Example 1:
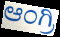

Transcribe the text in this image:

ಆಂಗ್ರಿ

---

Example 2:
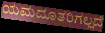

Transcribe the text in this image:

ಯಮದೂತರಿಗಲ್ಲದೆ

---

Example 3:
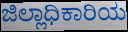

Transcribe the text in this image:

ಜಿಲ್ಲಾಧಿಕಾರಿಯ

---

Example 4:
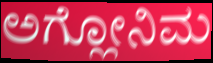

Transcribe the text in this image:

ಅಗ್ಲೋನಿಮ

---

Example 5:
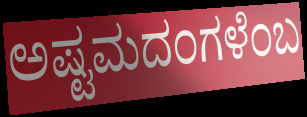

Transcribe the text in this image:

ಅಷ್ಟಮದಂಗಳೆಂಬ